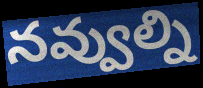
నవ్వుల్ని